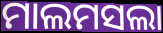
ମାଲମସଲା